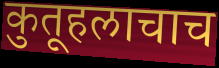
कुतूहलाचाच